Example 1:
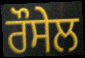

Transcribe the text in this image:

ਰੌਸੇਲ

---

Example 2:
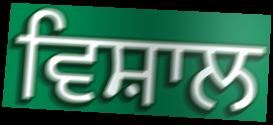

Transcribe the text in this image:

ਵਿਸ਼ਾਲ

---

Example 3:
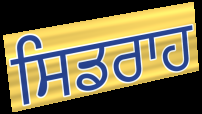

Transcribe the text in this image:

ਸਿਡਰਾਹ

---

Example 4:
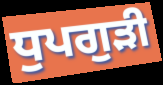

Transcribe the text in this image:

ਧੁਪਗੁੜੀ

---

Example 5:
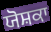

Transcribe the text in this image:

ਯੋਸ਼ਕਾ